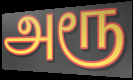
அரூ